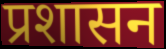
प्रशासन